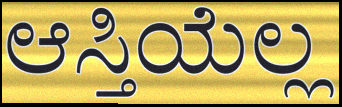
ಆಸ್ತಿಯೆಲ್ಲ